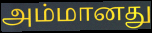
அம்மானது